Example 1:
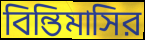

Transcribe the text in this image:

বিন্তিমাসির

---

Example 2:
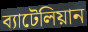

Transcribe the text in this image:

ব্যাটেলিয়ান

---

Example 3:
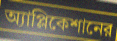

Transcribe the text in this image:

অ্যাপ্লিকেশানের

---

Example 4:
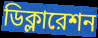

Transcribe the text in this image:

ডিক্লারেশন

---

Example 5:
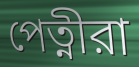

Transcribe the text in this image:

পেত্নীরা